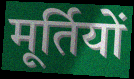
मूर्तियों